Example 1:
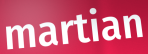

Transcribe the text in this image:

martian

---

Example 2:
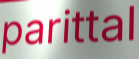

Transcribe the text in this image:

parittal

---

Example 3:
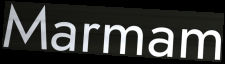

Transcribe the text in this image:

Marmam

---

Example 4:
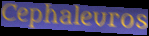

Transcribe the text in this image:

Cephaleuros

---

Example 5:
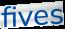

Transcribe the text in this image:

fives